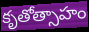
కృతోత్సాహం